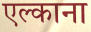
एल्काना